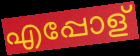
എപ്പോള്